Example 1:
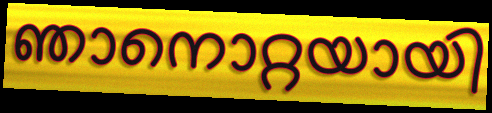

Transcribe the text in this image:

ഞാനൊറ്റയായി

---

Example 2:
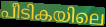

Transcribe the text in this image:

പീടികയിലെ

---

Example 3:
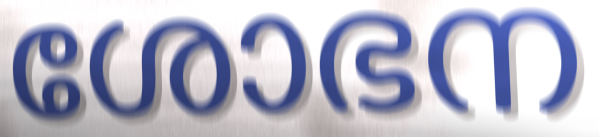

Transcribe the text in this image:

ശോഭന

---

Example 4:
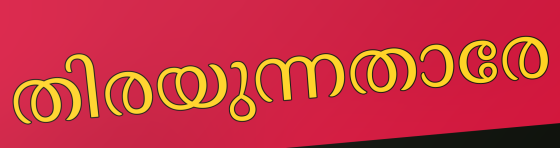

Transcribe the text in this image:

തിരയുന്നതാരേ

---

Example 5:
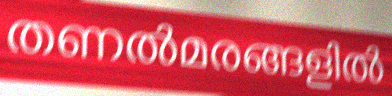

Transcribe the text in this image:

തണൽമരങ്ങളിൽ